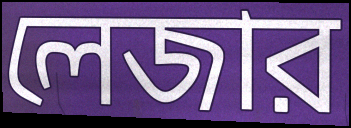
লেজার